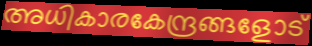
അധികാരകേന്ദ്രങ്ങളോട്